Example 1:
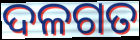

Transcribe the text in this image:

ଦଳଗତ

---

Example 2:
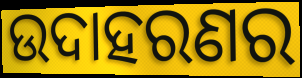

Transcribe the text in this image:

ଉଦାହରଣର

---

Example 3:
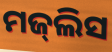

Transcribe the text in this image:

ମଜ୍‌ଲିସ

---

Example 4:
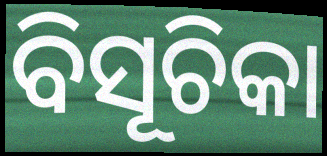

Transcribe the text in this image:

ବିସୂଚିକା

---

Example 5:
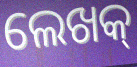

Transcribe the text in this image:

ଲେଖକ୍